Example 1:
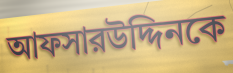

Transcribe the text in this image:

আফসারউদ্দিনকে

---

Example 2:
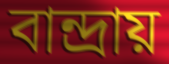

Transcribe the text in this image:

বান্দ্রায়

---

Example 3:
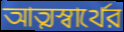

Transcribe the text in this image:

আত্মস্বার্থের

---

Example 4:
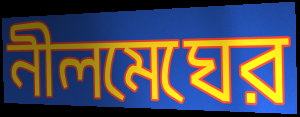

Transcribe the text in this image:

নীলমেঘের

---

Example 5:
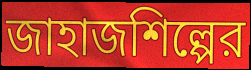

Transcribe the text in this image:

জাহাজশিল্পের